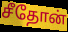
சீதோன்